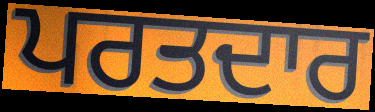
ਪਰਤਦਾਰ